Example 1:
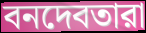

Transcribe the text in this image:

বনদেবতারা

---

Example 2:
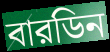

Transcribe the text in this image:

বারডিন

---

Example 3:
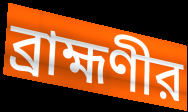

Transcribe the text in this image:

ব্রাহ্মণীর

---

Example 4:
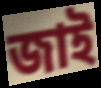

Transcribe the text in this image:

জাই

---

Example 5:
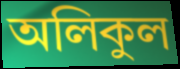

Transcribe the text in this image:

অলিকুল